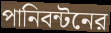
পানিবন্টনের